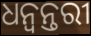
ଧନ୍ବନ୍ତରୀ